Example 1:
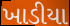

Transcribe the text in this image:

ખાડીયા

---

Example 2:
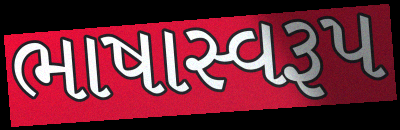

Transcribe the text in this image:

ભાષાસ્વરૂપ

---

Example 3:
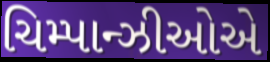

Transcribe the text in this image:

ચિમ્પાન્ઝીઓએ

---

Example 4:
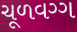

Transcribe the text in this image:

ચૂળવગ્ગ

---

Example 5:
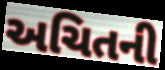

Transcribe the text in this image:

અચિતની